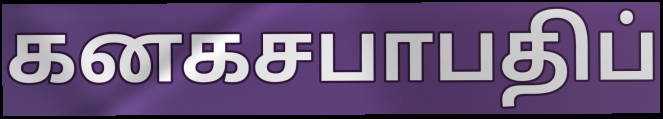
கனகசபாபதிப்